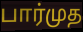
பார்முத